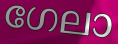
ഗേലാ